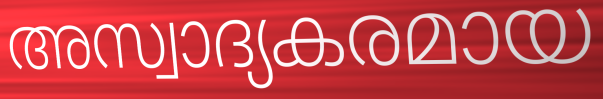
അസ്വാദ്യകരമായ